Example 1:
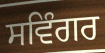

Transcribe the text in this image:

ਸਵਿੰਗਰ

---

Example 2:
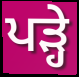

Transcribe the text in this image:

ਪੜ੍ਹੇ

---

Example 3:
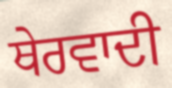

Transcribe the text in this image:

ਥੇਰਵਾਦੀ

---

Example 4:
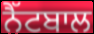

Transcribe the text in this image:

ਨੈੱਟਬਾਲ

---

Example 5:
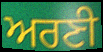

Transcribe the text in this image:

ਅਰਣੀ